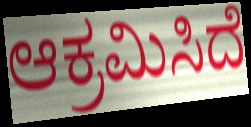
ಆಕ್ರಮಿಸಿದೆ